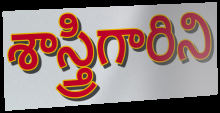
శాస్త్రిగారిని